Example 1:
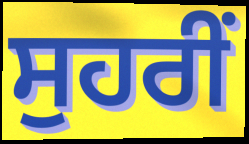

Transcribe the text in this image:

ਸੁਹਰੀਂ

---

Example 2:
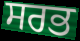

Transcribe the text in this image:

ਸਰਭ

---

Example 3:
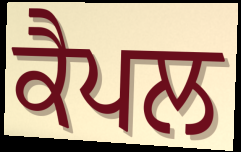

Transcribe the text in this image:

ਕੈਪਲ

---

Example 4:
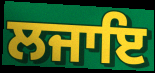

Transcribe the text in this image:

ਲਜਾਇ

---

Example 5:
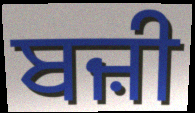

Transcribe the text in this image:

ਬਜ਼ੀ